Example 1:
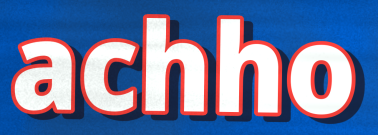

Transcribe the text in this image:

achho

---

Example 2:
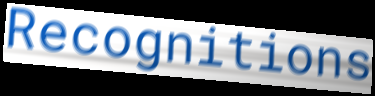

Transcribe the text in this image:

Recognitions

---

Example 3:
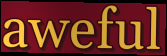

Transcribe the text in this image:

aweful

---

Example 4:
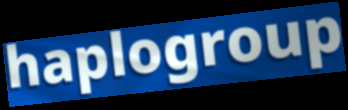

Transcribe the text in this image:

haplogroup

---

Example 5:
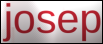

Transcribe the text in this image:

josep